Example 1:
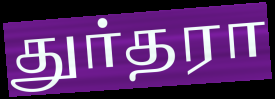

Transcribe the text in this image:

துர்தரா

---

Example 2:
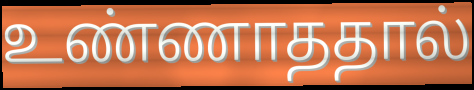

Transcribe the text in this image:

உண்ணாததால்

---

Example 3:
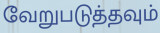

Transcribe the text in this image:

வேறுபடுத்தவும்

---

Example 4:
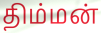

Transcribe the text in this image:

திம்மன்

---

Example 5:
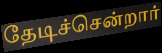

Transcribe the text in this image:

தேடிச்சென்றார்